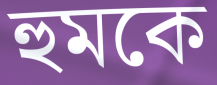
হুমকে